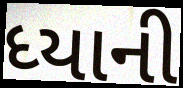
ધ્યાની